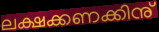
ലക്ഷക്കണക്കിനു്